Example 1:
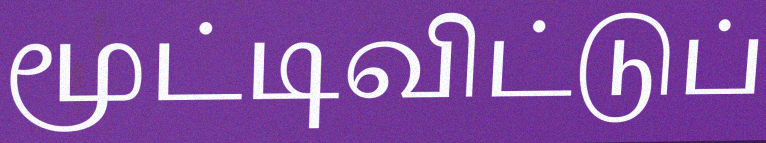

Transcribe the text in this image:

மூட்டிவிட்டுப்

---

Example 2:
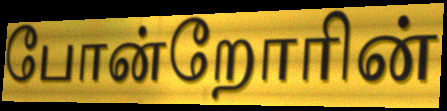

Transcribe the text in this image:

போன்றோரின்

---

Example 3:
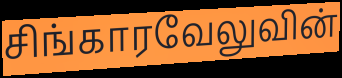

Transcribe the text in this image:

சிங்காரவேலுவின்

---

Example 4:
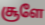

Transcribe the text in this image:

சூளே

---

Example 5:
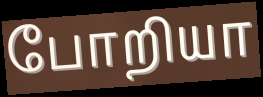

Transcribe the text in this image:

போறியா